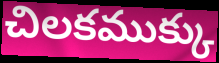
చిలకముక్కు